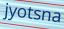
jyotsna